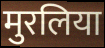
मुरलिया